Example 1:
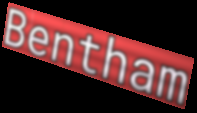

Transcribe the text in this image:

Bentham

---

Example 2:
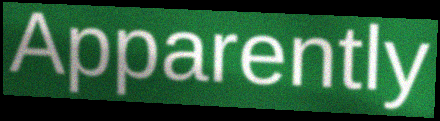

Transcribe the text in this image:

Apparently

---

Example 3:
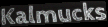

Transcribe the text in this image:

Kalmucks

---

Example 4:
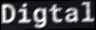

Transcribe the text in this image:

Digtal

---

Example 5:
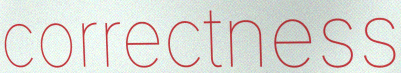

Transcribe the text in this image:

correctness